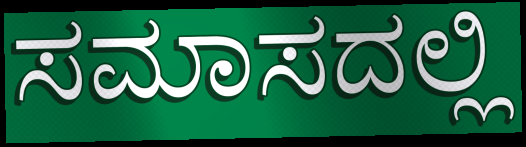
ಸಮಾಸದಲ್ಲಿ